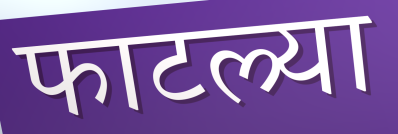
फाटल्या